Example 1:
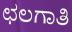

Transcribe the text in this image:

ಛಲಗಾತಿ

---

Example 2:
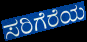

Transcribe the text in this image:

ಸರಿಗೆರೆಯ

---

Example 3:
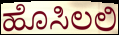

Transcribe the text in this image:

ಹೊಸಿಲಲಿ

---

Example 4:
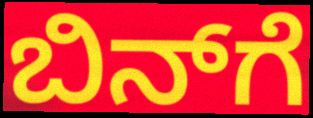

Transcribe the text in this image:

ಬಿನ್‌ಗೆ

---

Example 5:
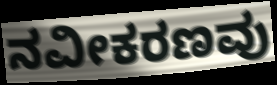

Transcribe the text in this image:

ನವೀಕರಣವು